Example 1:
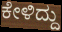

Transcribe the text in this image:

ಕೇಳಿದ್ದು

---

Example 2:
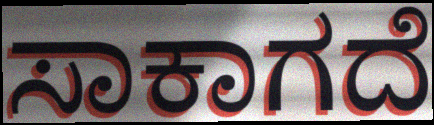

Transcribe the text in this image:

ಸಾಕಾಗದೆ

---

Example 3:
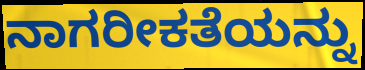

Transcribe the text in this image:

ನಾಗರೀಕತೆಯನ್ನು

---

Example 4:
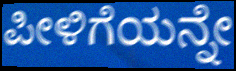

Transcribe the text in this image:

ಪೀಳಿಗೆಯನ್ನೇ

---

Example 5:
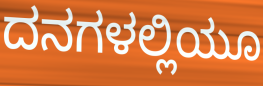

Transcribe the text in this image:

ದನಗಳಲ್ಲಿಯೂ